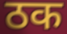
ठक